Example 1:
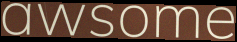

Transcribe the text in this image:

awsome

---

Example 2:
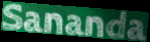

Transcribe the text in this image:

Sananda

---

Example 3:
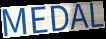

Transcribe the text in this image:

MEDAL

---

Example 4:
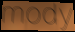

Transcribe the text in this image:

mody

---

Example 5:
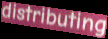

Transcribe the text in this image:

distributing